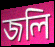
জলি